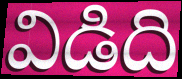
విడిది